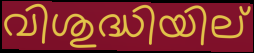
വിശുദ്ധിയില്